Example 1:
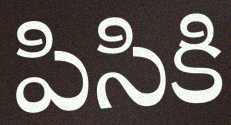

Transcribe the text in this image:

పిసికి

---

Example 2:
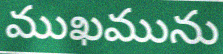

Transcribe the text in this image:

ముఖమును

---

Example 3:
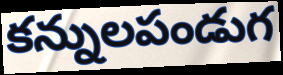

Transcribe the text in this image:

కన్నులపండుగ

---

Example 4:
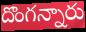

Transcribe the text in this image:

దొంగన్నారు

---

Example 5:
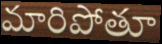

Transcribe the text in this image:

మారిపోతూ